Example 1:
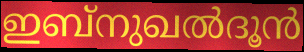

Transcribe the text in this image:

ഇബ്നുഖൽദൂൻ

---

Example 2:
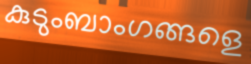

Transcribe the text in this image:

കുടുംബാംഗങ്ങളെ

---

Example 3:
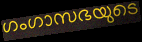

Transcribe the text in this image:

ഗംഗാസഭയുടെ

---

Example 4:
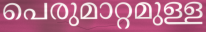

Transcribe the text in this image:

പെരുമാറ്റമുള്ള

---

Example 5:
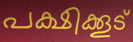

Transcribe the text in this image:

പക്ഷിക്കൂട്